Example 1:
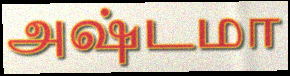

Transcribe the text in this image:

அஷ்டமா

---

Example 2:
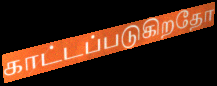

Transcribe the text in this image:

காட்டப்படுகிறதோ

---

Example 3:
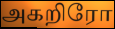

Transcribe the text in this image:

அகறிரோ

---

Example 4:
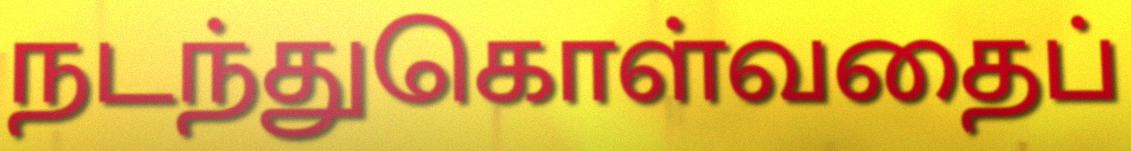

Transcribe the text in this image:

நடந்துகொள்வதைப்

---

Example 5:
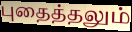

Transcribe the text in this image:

புதைத்தலும்